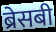
ब्रेसबी